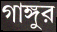
গাঙ্গুর